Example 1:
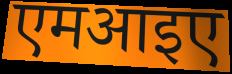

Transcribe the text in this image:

एमआइए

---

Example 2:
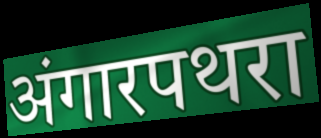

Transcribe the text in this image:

अंगारपथरा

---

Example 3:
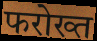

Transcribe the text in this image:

फरोख्‍त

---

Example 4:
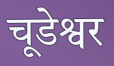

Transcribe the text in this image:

चूडेश्वर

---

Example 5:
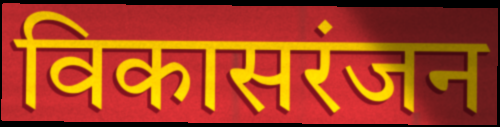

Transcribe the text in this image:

विकासरंजन